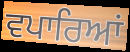
ਵਪਾਰਿਆਂ